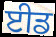
ਈਡ